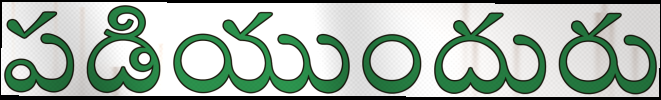
పడియుందురు